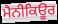
ਮੈਨੀਕਿਊਰ